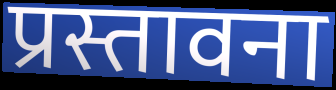
प्रस्तावना